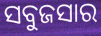
ସବୁଜସାର